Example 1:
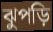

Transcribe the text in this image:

ঝুপড়ি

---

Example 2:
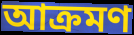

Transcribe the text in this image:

আক্রমণ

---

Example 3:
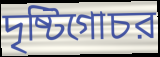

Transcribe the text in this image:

দৃষ্টিগোচর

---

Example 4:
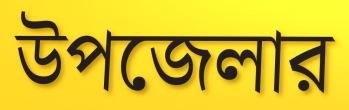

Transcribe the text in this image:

উপজেলার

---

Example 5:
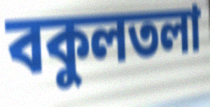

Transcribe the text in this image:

বকুলতলা